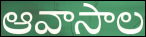
ఆవాసాల